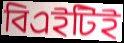
বিএইটিই